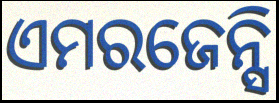
ଏମରଜେନ୍ସି